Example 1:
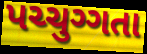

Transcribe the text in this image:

પચ્ચુગ્ગતા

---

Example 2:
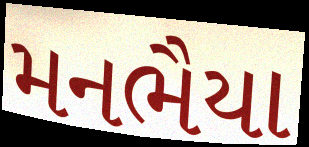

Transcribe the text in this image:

મનભૈયા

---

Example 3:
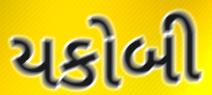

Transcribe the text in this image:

યકોબી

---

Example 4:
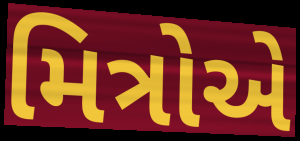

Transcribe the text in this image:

મિત્રોએ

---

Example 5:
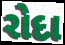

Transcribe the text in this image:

રોદા